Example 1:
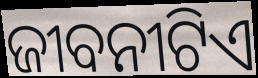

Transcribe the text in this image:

ଜୀବନୀଟିଏ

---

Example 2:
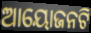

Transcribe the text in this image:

ଆୟୋଜନଟି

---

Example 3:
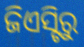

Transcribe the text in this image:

ଜିଏସ୍ଟିରୁ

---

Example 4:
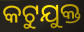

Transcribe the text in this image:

କଟୁଯୁକ୍ତ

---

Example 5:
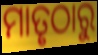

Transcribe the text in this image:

ମାତୃଠାରୁ